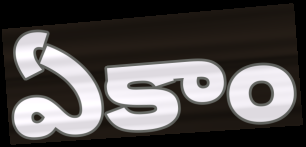
ఏకాం